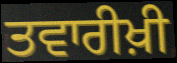
ਤਵਾਰੀਖ਼ੀ